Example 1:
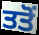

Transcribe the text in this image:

ਤਤੋਂ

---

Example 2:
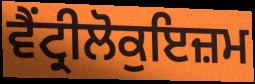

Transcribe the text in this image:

ਵੈਂਟ੍ਰੀਲੋਕੁਇਜ਼ਮ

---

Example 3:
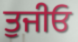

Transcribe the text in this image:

ਤੁਜੀਓ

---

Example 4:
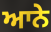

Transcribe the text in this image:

ਆਨੇ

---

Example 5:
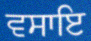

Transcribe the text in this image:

ਵਸਾਇ